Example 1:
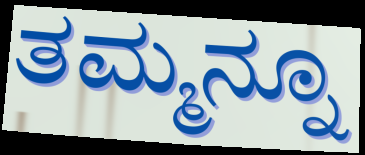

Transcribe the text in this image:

ತಮ್ಮನ್ನೂ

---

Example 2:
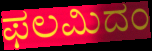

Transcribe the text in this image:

ಫಲಮಿದಂ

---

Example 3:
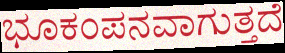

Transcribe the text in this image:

ಭೂಕಂಪನವಾಗುತ್ತದೆ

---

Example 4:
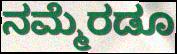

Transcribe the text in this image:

ನಮ್ಮೆರಡೂ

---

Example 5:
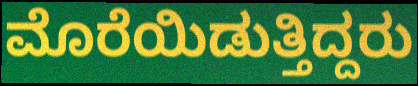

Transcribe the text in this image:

ಮೊರೆಯಿಡುತ್ತಿದ್ದರು